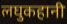
लघुकहानी